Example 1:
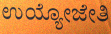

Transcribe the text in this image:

ಉಯ್ಯೋಜೇತಿ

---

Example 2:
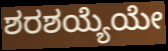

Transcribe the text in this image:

ಶರಶಯ್ಯೆಯೇ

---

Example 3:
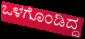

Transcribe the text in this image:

ಒಳಗೊಂಡಿದ್ದ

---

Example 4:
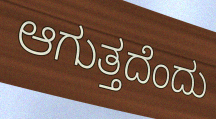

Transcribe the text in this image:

ಆಗುತ್ತದೆಂದು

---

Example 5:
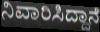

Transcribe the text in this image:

ನಿವಾರಿಸಿದ್ದಾನೆ